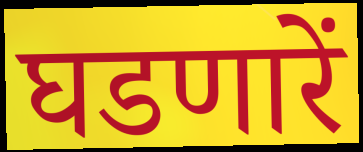
घडणारें